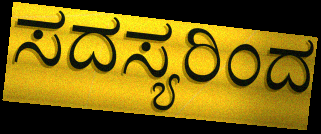
ಸದಸ್ಯರಿಂದ